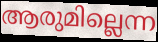
ആരുമില്ലെന്ന